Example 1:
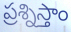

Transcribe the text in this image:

ప్రశ్నిస్తాం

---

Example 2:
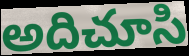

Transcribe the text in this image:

అదిచూసి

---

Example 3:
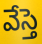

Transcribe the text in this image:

వేస్తె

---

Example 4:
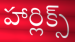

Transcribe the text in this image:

హార్లిక్స్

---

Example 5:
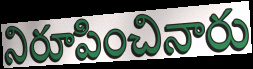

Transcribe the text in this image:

నిరూపించినారు